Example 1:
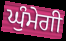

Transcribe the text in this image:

ਘੁੰਮੇਗੀ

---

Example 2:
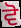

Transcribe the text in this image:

ਵੋ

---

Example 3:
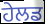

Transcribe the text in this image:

ਹੇਲਡ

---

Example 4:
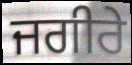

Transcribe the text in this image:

ਜਗੀਰੇ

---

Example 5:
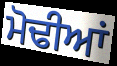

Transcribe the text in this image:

ਮੋਢੀਆਂ